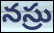
నస్రు